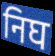
निघ